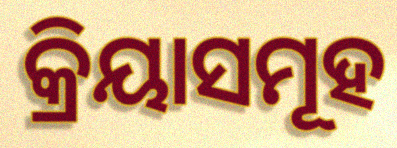
କ୍ରିୟାସମୂହ